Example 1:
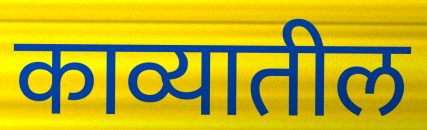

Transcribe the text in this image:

काव्यातील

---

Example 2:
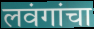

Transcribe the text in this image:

लवंगांचा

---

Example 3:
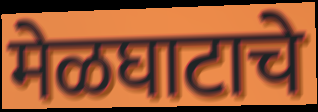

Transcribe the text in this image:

मेळघाटाचे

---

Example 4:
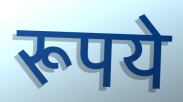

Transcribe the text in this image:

रूपये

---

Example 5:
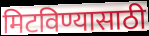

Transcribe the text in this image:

मिटविण्यासाठी